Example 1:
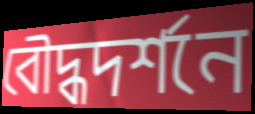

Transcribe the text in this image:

বৌদ্ধদর্শনে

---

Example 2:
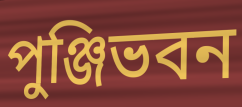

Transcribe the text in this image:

পুঞ্জিভবন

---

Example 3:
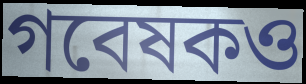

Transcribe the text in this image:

গবেষকও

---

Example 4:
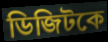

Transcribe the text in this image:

ডিজিটকে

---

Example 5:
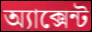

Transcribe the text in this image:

অ্যাক্সেন্ট